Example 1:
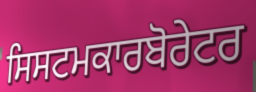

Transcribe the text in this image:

ਸਿਸਟਮਕਾਰਬੋਰੇਟਰ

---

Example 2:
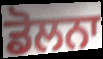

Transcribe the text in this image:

ਡੋਲਨਾ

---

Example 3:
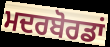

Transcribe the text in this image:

ਮਦਰਬੋਰਡਾਂ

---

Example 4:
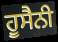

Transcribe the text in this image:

ਹੂਸੈਨੀ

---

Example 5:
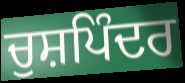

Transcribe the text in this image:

ਚੁਸ਼ਪਿੰਦਰ